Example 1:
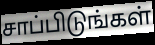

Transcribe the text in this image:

சாப்பிடுங்கள்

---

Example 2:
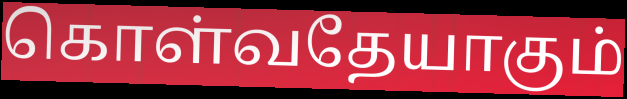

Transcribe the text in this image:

கொள்வதேயாகும்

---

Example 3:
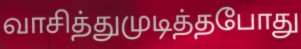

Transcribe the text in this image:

வாசித்துமுடித்தபோது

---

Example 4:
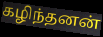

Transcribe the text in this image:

கழிந்தனன்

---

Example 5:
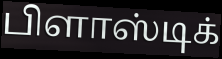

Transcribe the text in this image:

பிளாஸ்டிக்